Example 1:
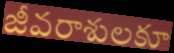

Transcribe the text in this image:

జీవరాశులకూ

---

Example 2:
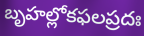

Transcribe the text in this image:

బృహల్లోకఫలప్రదః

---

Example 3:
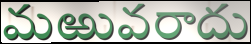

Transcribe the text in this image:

మఱువరాదు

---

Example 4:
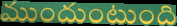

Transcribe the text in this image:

ముందుంటుంది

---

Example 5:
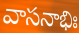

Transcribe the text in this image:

వాసనాభిః